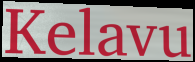
Kelavu